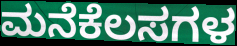
ಮನೆಕೆಲಸಗಳ